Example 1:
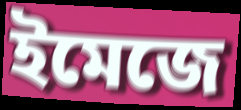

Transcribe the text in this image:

ইমেজে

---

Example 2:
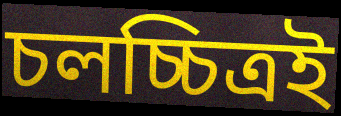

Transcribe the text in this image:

চলচ্চিত্ৰই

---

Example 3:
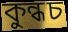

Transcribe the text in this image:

কুন্ধচ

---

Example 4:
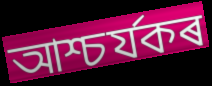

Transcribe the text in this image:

আশ্চৰ্যকৰ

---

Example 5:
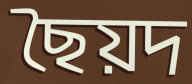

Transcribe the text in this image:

ছৈয়দ